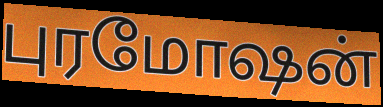
புரமோஷன்